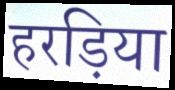
हरड़िया